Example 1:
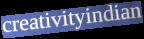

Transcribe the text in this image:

creativityindian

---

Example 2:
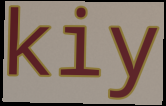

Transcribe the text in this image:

kiy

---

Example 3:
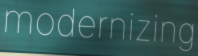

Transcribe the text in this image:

modernizing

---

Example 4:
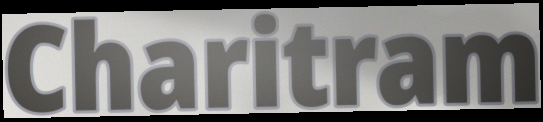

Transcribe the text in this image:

Charitram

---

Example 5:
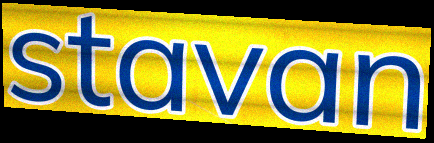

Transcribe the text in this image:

stavan